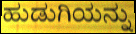
ಹುಡುಗಿಯನ್ನು